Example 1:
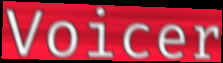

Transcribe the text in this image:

Voicer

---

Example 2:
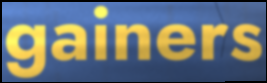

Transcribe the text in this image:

gainers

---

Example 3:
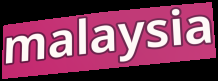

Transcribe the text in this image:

malaysia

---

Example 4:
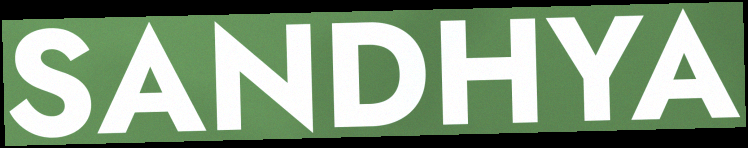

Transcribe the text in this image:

SANDHYA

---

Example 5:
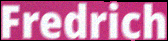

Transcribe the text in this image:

Fredrich